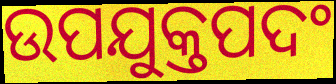
ଉପଯୁକ୍ତପଦଂ